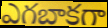
ఎగబాకగా